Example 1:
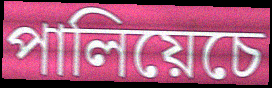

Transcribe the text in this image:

পালিয়েচে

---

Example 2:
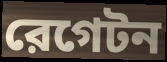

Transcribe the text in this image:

রেগেটন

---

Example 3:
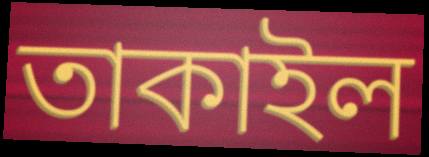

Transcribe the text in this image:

তাকাইল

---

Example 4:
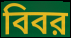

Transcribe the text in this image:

বিবর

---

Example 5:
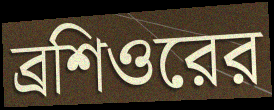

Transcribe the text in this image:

ব্রশিওরের